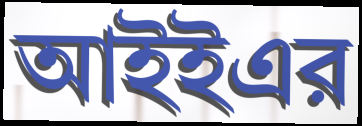
আইইএর